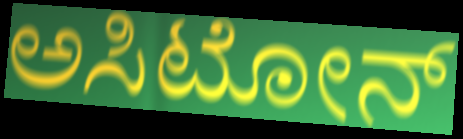
ಅಸಿಟೋನ್